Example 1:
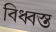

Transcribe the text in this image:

বিধ্বস্ত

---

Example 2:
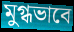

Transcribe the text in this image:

মুগ্ধভাবে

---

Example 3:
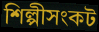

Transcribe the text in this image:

শিল্পীসংকট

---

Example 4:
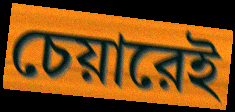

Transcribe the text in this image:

চেয়ারেই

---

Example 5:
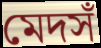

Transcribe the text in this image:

মেদসঁ